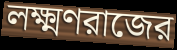
লক্ষ্মণরাজের